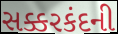
સક્કરકંદની